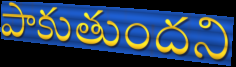
పాకుతుందని